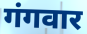
गंगवार